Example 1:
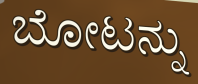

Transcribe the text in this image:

ಬೋಟನ್ನು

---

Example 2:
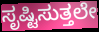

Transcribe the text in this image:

ಸೃಷ್ಟಿಸುತ್ತಲೇ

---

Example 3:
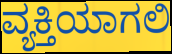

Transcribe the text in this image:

ವ್ಯಕ್ತಿಯಾಗಲಿ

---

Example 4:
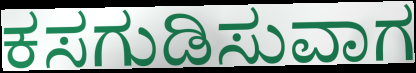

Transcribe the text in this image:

ಕಸಗುಡಿಸುವಾಗ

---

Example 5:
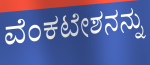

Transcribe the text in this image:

ವೆಂಕಟೇಶನನ್ನು